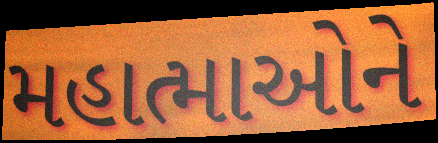
મહાત્માઓને